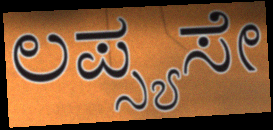
ಲಪ್ಸ್ಯಸೇ